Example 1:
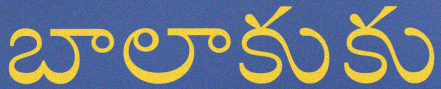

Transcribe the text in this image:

బాలాకుకు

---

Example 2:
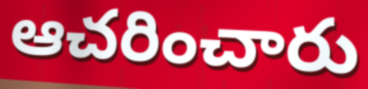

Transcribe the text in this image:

ఆచరించారు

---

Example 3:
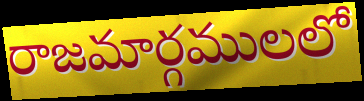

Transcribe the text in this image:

రాజమార్గములలో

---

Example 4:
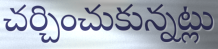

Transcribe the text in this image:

చర్చించుకున్నట్లు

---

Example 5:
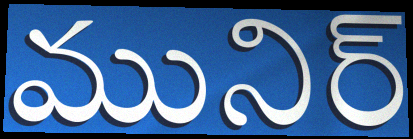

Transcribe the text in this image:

మునిర్